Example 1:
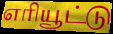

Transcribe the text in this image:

எரியூட்டு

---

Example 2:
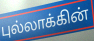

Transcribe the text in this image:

புல்லாக்கின்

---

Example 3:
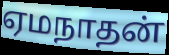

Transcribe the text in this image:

ஏமநாதன்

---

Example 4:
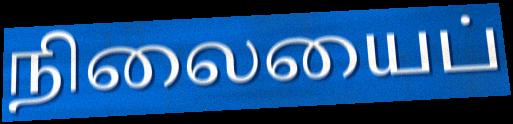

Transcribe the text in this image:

நிலையைப்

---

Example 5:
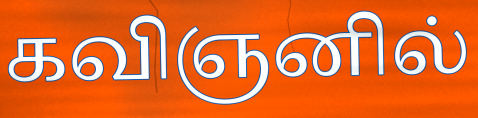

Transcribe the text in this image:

கவிஞனில்